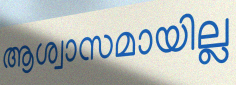
ആശ്വാസമായില്ല